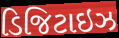
ડિજિટાઇઝ